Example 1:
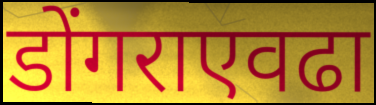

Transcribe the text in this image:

डोंगराएवढा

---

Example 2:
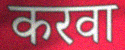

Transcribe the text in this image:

करवा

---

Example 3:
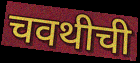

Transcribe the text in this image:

चवथीची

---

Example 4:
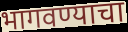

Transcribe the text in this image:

भागवण्याचा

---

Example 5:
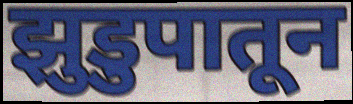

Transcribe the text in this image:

झुडुपातून